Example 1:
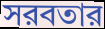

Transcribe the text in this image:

সরবতার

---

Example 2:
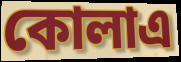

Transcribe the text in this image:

কোলাএ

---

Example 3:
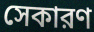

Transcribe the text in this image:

সেকারণ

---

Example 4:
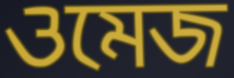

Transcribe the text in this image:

ওমেজ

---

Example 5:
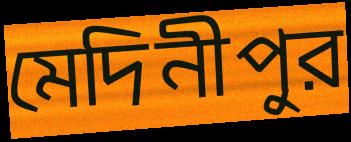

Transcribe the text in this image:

মেদিনীপুর